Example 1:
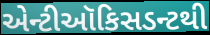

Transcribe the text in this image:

એન્ટીઑકિસડન્ટથી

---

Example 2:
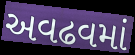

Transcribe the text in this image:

અવઢવમાં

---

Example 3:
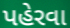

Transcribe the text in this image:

પહેરવા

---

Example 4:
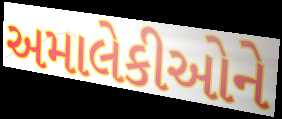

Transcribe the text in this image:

અમાલેકીઓને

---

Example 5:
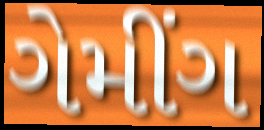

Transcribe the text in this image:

ગેમીંગ